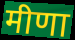
मीणा